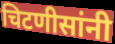
चिटणीसांनी